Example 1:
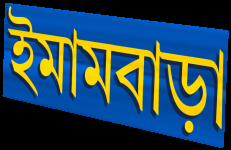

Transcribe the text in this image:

ইমামবাড়া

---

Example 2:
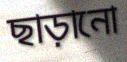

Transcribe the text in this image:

ছাড়ানো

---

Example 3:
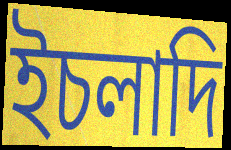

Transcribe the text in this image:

ইচলাদি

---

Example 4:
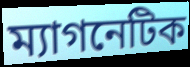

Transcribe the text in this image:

ম্যাগনেটিক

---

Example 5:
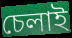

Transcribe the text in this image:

চেলাই